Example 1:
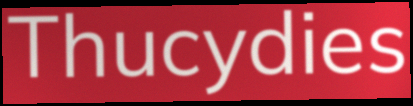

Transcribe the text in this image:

Thucydies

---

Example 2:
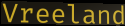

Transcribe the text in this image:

Vreeland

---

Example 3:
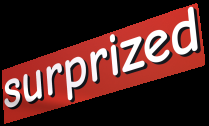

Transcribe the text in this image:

surprized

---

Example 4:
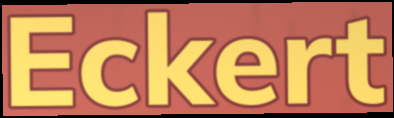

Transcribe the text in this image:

Eckert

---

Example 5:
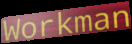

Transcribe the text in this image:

Workman